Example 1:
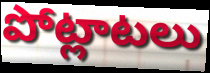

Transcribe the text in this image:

పోట్లాటలు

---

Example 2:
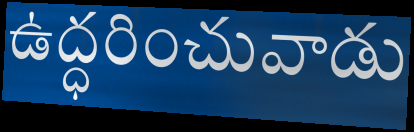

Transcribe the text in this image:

ఉద్ధరించువాడు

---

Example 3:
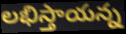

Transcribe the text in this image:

లభిస్తాయన్న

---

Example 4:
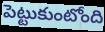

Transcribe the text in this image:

పెట్టుకుంటోంది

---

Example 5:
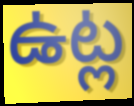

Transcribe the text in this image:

ఉట్ల